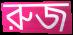
রুজ